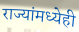
राज्यांमध्येही